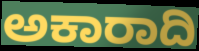
ಅಕಾರಾದಿ